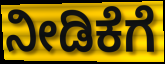
ನೀಡಿಕೆಗೆ